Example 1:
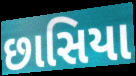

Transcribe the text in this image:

છાસિયા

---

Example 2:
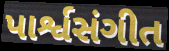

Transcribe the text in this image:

પાર્શ્વસંગીત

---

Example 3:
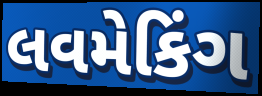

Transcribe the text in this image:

લવમેકિંગ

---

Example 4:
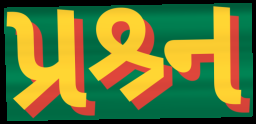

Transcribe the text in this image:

પ્રશ્ર્ન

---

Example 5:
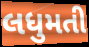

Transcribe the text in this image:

લધુમતી